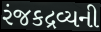
રંજકદ્રવ્યની